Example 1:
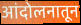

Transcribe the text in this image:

आंदोलनातून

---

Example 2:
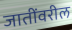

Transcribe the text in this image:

जातींवरील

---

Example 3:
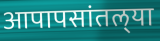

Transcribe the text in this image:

आपापसांतल्या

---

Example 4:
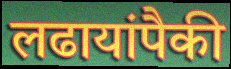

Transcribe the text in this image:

लढायांपैकी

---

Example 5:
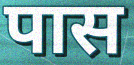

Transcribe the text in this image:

पास